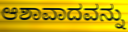
ಆಶಾವಾದವನ್ನು